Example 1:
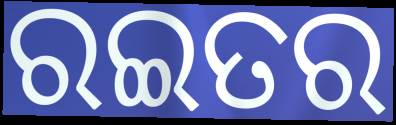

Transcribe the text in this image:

ରଇତର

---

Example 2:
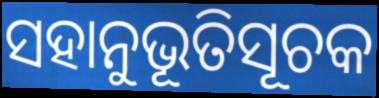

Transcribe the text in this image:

ସହାନୁଭୂତିସୂଚକ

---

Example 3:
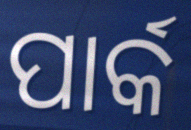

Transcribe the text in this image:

ପାର୍କ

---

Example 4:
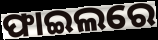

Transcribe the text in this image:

ଫାଇଲରେ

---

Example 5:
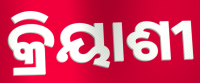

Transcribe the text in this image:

କ୍ରିୟାଶୀ